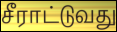
சீராட்டுவது